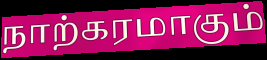
நாற்கரமாகும்